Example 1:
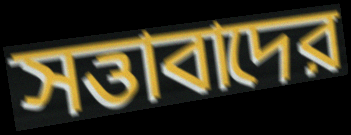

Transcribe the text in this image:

সত্তাবাদের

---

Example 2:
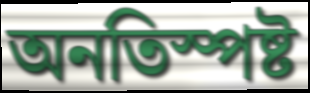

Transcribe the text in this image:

অনতিস্পষ্ট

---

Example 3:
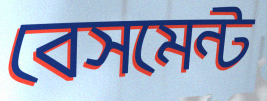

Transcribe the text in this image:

বেসমেন্ট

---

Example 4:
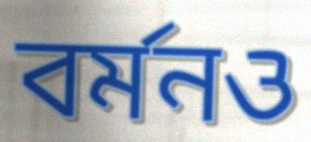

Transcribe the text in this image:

বর্মনও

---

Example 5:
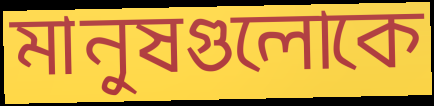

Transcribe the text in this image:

মানুষগুলোকে